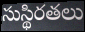
సుస్థిరతలు